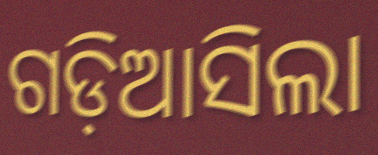
ଗଡ଼ିଆସିଲା